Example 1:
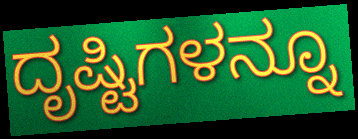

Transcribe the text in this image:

ದೃಷ್ಟಿಗಳನ್ನೂ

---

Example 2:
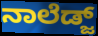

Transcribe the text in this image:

ನಾಲೆಡ್ಜ್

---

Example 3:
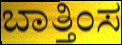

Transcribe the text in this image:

ಬಾತ್ತಿಂಸ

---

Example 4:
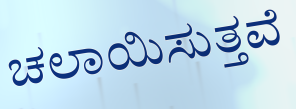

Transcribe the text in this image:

ಚಲಾಯಿಸುತ್ತವೆ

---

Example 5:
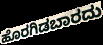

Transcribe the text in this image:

ಹೊರಗಿಡಬಾರದು